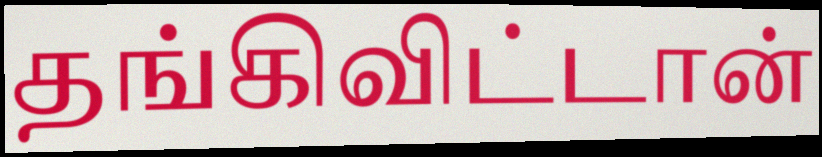
தங்கிவிட்டான்